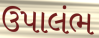
ઉપાલંભ